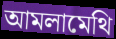
আমলামেথি